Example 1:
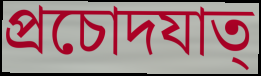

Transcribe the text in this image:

প্রচোদযাত্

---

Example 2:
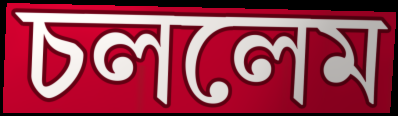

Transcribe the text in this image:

চললেম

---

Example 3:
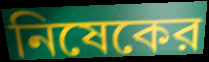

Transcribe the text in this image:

নিষেকের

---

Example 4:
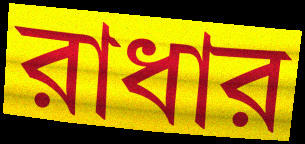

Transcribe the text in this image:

রাধার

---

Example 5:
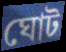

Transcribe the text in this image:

ঘোট